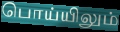
பொய்யிலும்